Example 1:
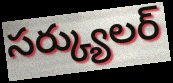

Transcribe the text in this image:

సర్క్యులర్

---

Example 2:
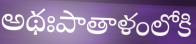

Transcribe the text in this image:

అథఃపాతాళంలోకి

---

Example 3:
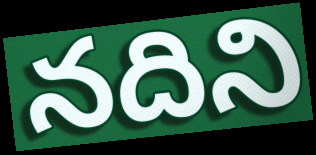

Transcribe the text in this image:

నదిని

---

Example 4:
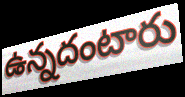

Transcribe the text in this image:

ఉన్నదంటారు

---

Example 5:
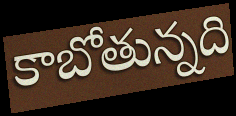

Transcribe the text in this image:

కాబోతున్నది